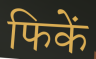
फिकें